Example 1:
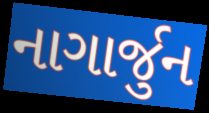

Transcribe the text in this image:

નાગાર્જુન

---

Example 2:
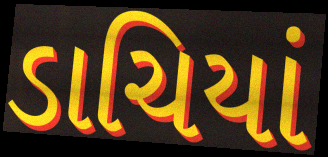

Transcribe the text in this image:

ડાચિયાં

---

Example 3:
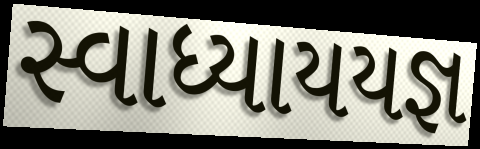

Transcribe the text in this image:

સ્વાધ્યાયયજ્ઞ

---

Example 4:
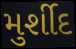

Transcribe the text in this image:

મુર્શીદ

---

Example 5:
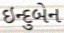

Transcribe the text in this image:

ઇન્દુબેન